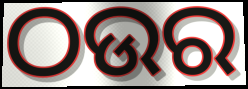
ଠଉର